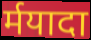
र्मयादा